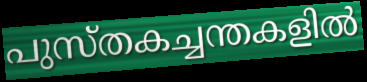
പുസ്തകച്ചന്തകളിൽ